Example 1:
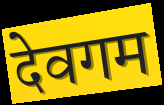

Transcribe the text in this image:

देवगम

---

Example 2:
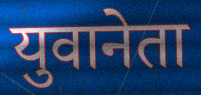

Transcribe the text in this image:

युवानेता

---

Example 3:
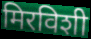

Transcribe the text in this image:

मिरविशी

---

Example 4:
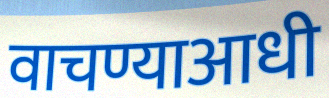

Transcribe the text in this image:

वाचण्याआधी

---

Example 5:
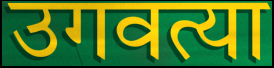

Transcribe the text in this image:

उगवत्या